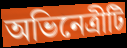
অভিনেত্রীটি